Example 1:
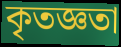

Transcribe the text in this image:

কৃতজ্ঞতা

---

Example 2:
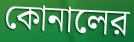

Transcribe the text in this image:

কোনালের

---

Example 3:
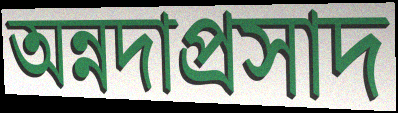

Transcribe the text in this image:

অন্নদাপ্রসাদ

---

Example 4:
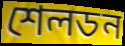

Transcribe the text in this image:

শেলডন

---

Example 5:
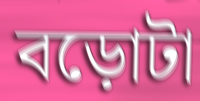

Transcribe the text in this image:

বড়োটা